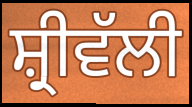
ਸ਼੍ਰੀਵੱਲੀ